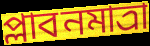
প্লাবনমাত্রা